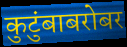
कुटुंबाबरोबर